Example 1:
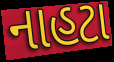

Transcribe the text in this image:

નાહટા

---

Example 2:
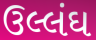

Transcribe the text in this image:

ઉલ્લંઘ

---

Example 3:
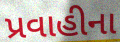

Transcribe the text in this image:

પ્રવાહીના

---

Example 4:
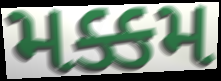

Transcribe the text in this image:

મક્કમ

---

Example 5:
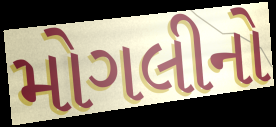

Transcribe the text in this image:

મોગલીનો